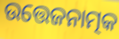
ଉତ୍ତେଜନାତ୍ମକ